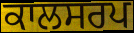
ਕਾਲਸਰਪ